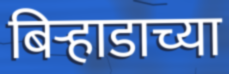
बिऱ्हाडाच्या